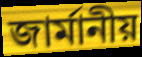
জাৰ্মানীয়